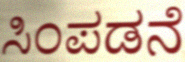
ಸಿಂಪಡನೆ